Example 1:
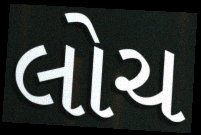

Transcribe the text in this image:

લોચ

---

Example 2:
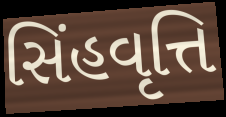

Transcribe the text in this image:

સિંહવૃત્તિ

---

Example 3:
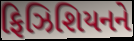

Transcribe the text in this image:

ફિઝિશિયનને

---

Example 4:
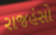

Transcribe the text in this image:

રાજહંસો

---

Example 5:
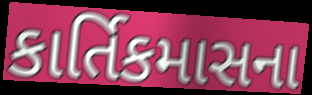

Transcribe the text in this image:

કાર્તિકમાસના